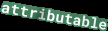
attributable